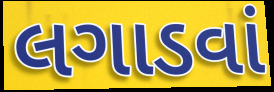
લગાડવાં